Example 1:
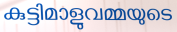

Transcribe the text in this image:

കുട്ടിമാളുവമ്മയുടെ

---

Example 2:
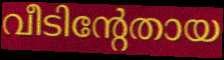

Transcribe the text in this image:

വീടിന്റേതായ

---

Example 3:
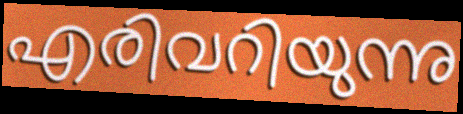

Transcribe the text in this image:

എരിവറിയുന്നു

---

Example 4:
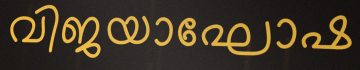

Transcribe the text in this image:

വിജയാഘോഷ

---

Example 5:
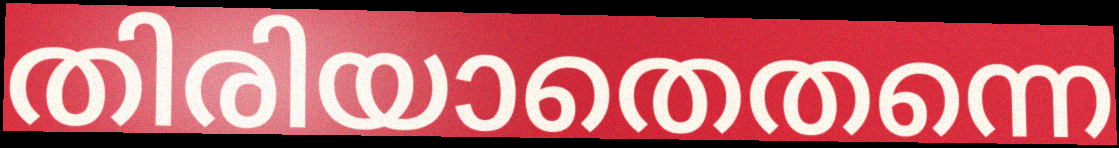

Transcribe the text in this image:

തിരിയാതെതന്നെ